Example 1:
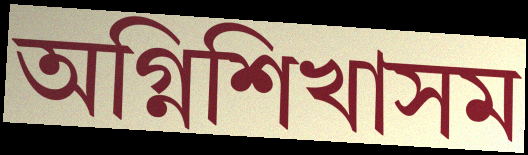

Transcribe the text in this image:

অগ্নিশিখাসম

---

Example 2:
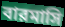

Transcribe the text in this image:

বারমাসি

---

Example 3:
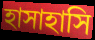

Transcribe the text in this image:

হাসাহাসি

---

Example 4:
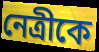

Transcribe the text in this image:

নেত্রীকে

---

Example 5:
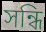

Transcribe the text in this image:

সন্ধি